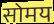
सोमय